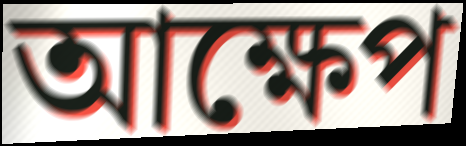
আক্ষেপ